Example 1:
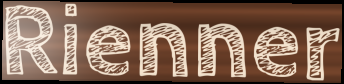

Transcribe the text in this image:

Rienner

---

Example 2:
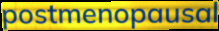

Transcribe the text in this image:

postmenopausal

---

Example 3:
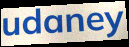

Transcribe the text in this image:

udaney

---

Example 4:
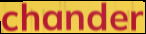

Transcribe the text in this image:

chander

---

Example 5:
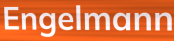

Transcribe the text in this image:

Engelmann